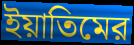
ইয়াতিমের